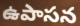
ఉపాసన